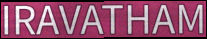
IRAVATHAM